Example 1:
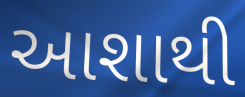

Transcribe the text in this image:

આશાથી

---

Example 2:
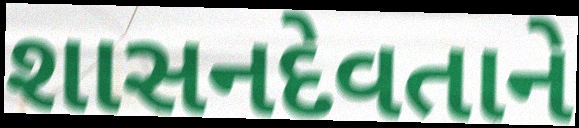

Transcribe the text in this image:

શાસનદેવતાને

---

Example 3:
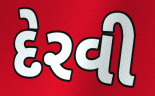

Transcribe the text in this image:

દેરવી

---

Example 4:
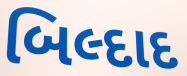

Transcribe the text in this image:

બિલ્દાદ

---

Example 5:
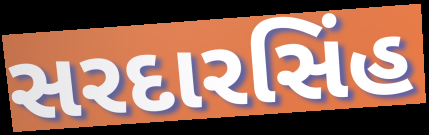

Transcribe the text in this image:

સરદારસિંહ